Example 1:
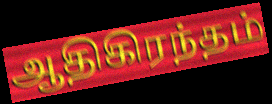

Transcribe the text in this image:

ஆதிகிரந்தம்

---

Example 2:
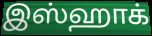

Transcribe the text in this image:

இஸ்ஹாக்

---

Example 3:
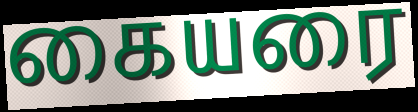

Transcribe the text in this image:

கையரை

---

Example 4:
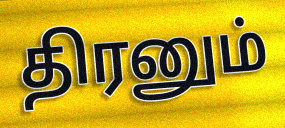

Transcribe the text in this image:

திரனும்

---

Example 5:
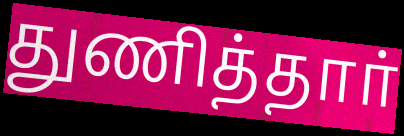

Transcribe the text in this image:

துணித்தார்